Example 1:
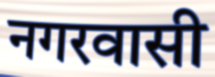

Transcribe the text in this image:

नगरवासी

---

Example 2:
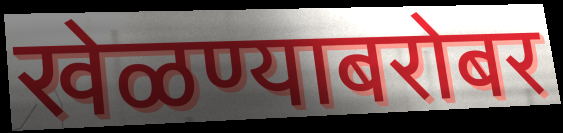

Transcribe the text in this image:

खेळण्याबरोबर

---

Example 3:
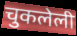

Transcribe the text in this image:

चुकलेली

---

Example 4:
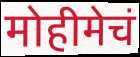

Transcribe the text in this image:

मोहीमेचं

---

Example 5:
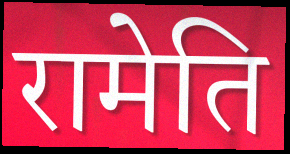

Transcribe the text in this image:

रामेति